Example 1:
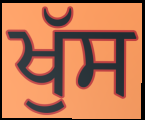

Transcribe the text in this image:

ਖੁੱਸ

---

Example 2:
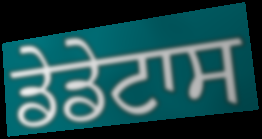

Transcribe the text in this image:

ਡੇਡੇਟਾਸ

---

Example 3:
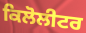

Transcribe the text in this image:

ਕਿਲੋਲੀਟਰ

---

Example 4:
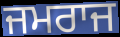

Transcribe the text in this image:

ਜਮਰਾਜ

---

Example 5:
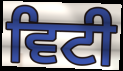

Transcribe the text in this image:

ਵਿਟੀ